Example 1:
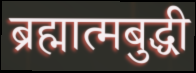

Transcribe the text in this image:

ब्रह्मात्मबुद्धी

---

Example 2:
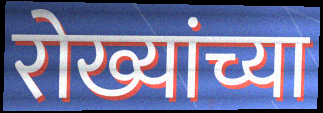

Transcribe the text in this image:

रोख्यांच्या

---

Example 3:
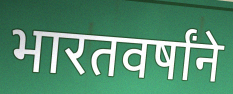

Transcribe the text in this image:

भारतवर्षांने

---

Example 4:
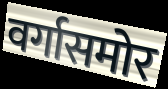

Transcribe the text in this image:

वर्गासमोर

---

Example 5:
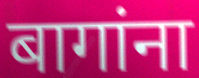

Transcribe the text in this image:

बागांना